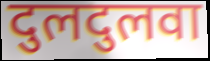
दुलदुलवा